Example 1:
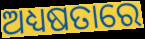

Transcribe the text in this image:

ଅଧ୍ୟଷତାରେ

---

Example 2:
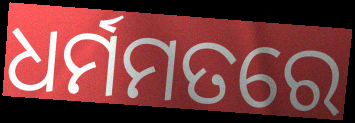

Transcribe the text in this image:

ଧର୍ମମତରେ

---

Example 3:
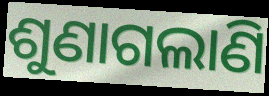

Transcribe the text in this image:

ଶୁଣାଗଲାଣି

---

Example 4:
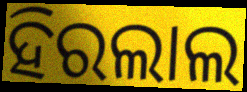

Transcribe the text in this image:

ହିରଲାଲ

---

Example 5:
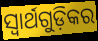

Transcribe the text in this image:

ସ୍ୱାର୍ଥଗୁଡ଼ିକର